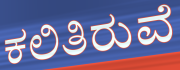
ಕಲಿತಿರುವೆ